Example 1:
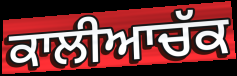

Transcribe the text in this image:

ਕਾਲੀਆਚੱਕ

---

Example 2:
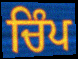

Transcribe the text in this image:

ਚਿੰਪ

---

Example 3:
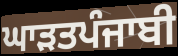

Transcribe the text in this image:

ਘਾੜਤਪੰਜਾਬੀ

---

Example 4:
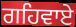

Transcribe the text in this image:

ਗਹਿਵਾਏ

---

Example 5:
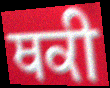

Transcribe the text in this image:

ਥਕੀ